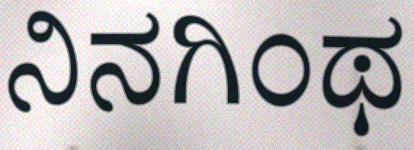
ನಿನಗಿಂಥ